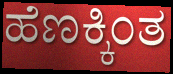
ಹೆಣಕ್ಕಿಂತ